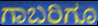
ಗಾಬರಿಗೂ